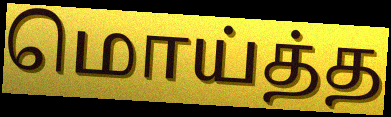
மொய்த்த